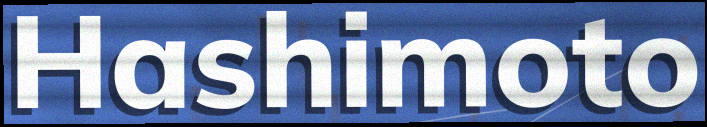
Hashimoto